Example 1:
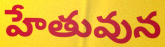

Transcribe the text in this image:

హేతువున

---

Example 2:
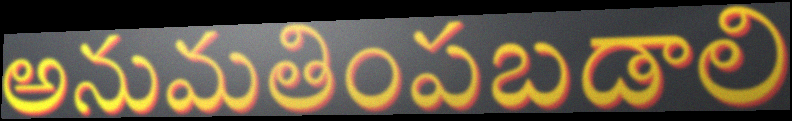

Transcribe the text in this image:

అనుమతింపబడాలి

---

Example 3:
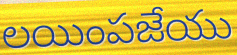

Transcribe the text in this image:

లయింపజేయు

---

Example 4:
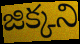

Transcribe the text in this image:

జిక్కని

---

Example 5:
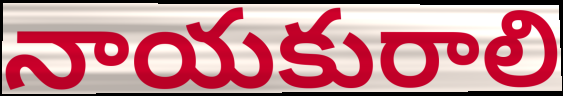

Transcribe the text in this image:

నాయకురాలి